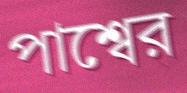
পাশ্বের